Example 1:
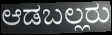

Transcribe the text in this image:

ಆಡಬಲ್ಲರು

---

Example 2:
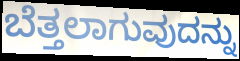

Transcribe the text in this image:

ಬೆತ್ತಲಾಗುವುದನ್ನು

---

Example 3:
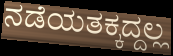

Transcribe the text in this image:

ನಡೆಯತಕ್ಕದ್ದಲ್ಲ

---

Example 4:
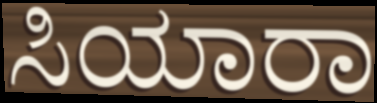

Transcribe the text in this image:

ಸಿಯಾರಾ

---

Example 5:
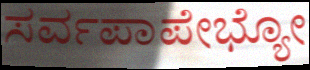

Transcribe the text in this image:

ಸರ್ವಪಾಪೇಭ್ಯೋ